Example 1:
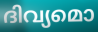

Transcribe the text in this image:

ദിവ്യമൊ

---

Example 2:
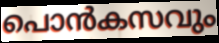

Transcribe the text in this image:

പൊൻകസവും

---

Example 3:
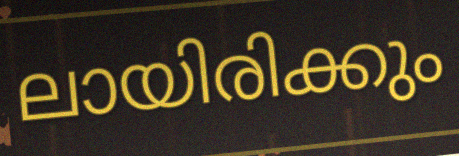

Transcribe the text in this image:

ലായിരിക്കും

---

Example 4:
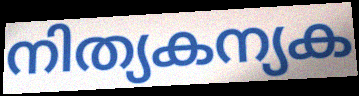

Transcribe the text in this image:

നിത്യകന്യക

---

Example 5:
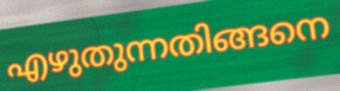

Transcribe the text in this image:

എഴുതുന്നതിങ്ങനെ